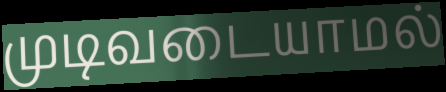
முடிவடையாமல்